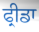
ਫ੍ਰੀਡਾ